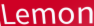
Lemon